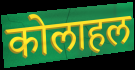
कोलाहल